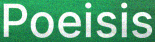
Poeisis